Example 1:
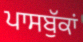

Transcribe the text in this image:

ਪਾਸਬੁੱਕਾਂ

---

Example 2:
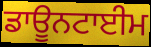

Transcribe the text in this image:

ਡਾਊਨਟਾਈਮ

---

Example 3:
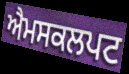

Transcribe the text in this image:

ਐਮਸਕਲਪਟ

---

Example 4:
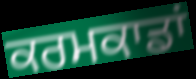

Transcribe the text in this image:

ਕਰਮਕਾਡਾਂ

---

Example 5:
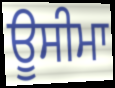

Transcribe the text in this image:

ਊਸੀਮਾ